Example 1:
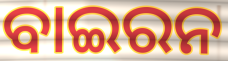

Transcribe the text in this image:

ବାଇରନ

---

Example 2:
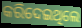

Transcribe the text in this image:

କରିଦେଇଥିଲେ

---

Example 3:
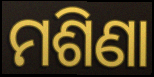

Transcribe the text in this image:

ମଶିଣା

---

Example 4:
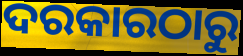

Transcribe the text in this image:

ଦରକାରଠାରୁ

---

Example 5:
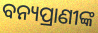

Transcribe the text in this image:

ବନ୍ୟପ୍ରାଣୀଙ୍କ